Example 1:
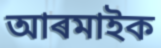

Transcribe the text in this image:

আৰমাইক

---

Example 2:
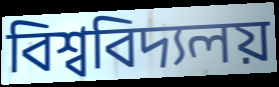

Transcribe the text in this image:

বিশ্ববিদ্যলয়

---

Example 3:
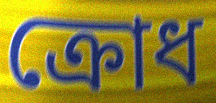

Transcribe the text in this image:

ক্ৰোধ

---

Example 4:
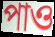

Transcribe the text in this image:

পাও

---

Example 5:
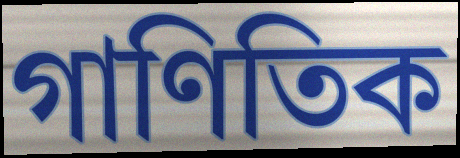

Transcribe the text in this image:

গাণিতিক